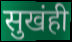
सुखंही